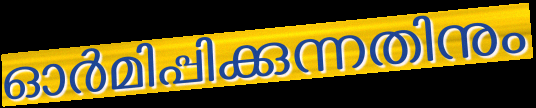
ഓർമിപ്പിക്കുന്നതിനും